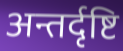
अन्तर्दृष्टि